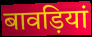
बावड़ियां